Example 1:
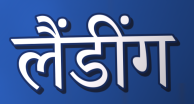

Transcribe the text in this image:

लैंडींग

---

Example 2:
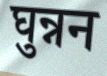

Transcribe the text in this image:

घुन्नन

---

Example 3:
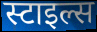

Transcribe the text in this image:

स्टाइल्स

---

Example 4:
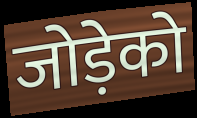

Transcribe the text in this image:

जोड़ेको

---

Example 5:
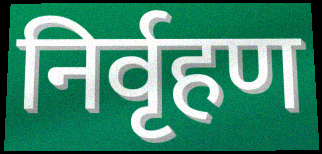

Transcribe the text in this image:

निर्वृहण